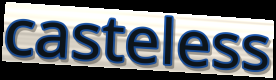
casteless